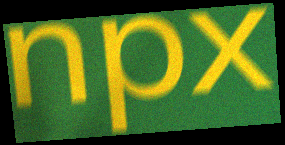
npx